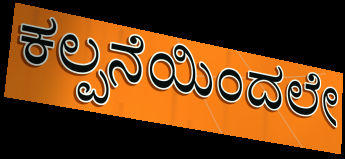
ಕಲ್ಪನೆಯಿಂದಲೇ